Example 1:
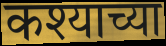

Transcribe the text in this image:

कश्याच्या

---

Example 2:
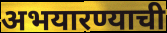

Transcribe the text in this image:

अभयारण्याची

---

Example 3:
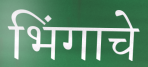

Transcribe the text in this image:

भिंगाचे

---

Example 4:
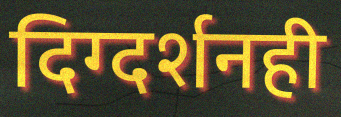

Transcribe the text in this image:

दिग्दर्शनही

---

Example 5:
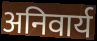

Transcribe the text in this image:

अनिवार्य